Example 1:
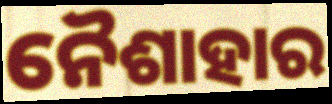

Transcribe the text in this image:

ନୈଶାହାର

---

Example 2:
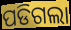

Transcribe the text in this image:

ପଡିଗଲା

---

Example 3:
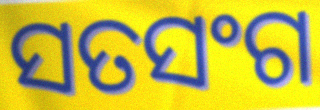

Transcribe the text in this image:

ସତସଂଗ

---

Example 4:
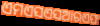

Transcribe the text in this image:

ଏମଏସଏସଆରଏଫ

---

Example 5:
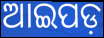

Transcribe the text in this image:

ଆଇପଡ଼